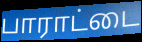
பாராட்டை